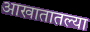
आखातातल्या